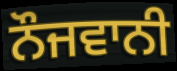
ਨੌਜਵਾਨੀ